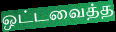
ஒட்டவைத்த